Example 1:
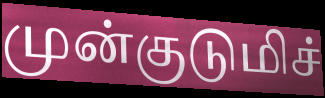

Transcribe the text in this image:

முன்குடுமிச்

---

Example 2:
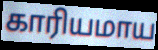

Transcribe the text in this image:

காரியமாய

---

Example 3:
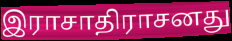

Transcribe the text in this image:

இராசாதிராசனது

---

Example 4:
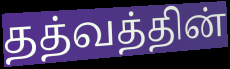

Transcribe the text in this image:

தத்வத்தின்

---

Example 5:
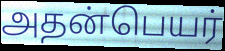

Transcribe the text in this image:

அதன்பெயர்